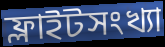
ফ্লাইটসংখ্যা